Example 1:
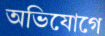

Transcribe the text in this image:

অভিযোগে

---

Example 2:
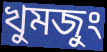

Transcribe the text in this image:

খুমজুং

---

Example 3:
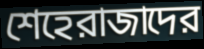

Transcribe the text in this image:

শেহেরাজাদের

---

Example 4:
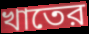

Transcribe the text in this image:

খাতের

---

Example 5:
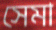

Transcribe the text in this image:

সেমা